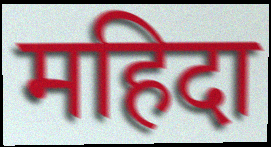
महिदा